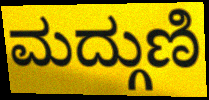
ಮದ್ಗುಣಿ